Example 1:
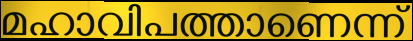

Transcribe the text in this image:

മഹാവിപത്താണെന്ന്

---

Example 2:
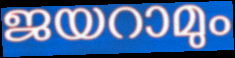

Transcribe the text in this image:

ജയറാമും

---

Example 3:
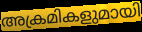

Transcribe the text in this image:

അക്രമികളുമായി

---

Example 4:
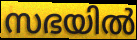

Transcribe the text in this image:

സഭയിൽ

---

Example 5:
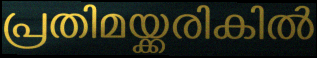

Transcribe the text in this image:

പ്രതിമയ്ക്കരികിൽ